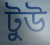
টুউ